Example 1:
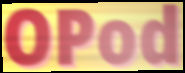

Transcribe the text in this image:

OPod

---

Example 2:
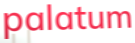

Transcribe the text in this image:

palatum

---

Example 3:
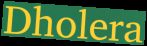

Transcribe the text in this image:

Dholera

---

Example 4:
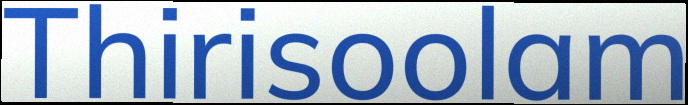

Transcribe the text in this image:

Thirisoolam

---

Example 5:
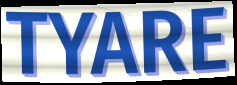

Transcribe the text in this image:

TYARE